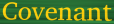
Covenant